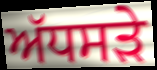
ਅੱਧਸੜੇ